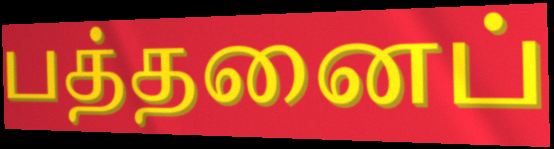
பத்தனைப்